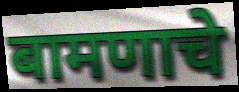
बामणाचे